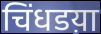
चिंधडय़ा